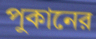
পুকানের